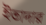
ইতাদার